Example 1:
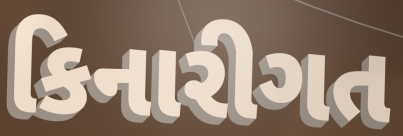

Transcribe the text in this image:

કિનારીગત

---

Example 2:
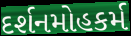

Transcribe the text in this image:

દર્શનમોહકર્મ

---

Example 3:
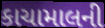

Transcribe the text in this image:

કાચામાલની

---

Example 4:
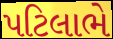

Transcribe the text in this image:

પટિલાભે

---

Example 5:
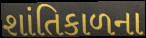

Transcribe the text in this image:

શાંતિકાળના